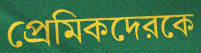
প্রেমিকদেরকে